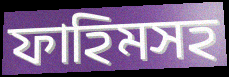
ফাহিমসহ